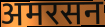
अमरसन